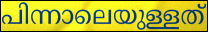
പിന്നാലെയുള്ളത്